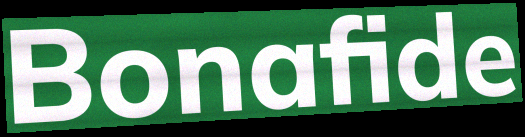
Bonafide